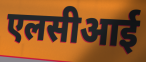
एलसीआई